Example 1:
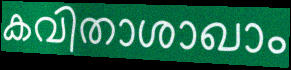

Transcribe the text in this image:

കവിതാശാഖാം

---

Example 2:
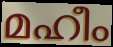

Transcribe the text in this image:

മഹീം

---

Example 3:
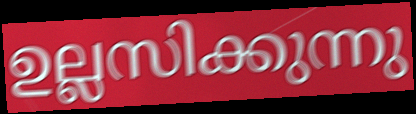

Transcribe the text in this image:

ഉല്ലസിക്കുന്നു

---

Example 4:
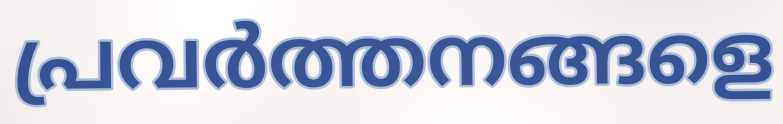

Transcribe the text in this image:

പ്രവർത്തനങ്ങളെ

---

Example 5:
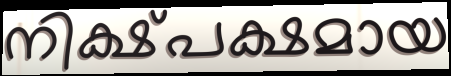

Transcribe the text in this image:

നിക്ഷ്പക്ഷമായ